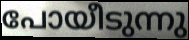
പോയീടുന്നു